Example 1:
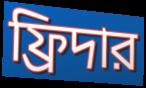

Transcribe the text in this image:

ফ্রিদার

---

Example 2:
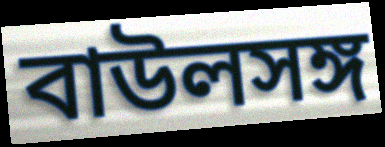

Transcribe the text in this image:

বাউলসঙ্গ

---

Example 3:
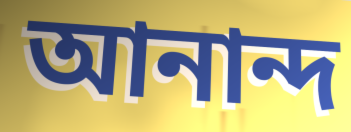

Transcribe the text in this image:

আনান্দ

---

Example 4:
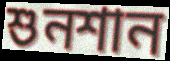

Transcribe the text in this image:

শুনশান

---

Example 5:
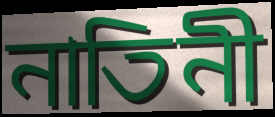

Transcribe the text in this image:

নাতিনী